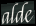
alde